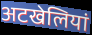
अटखेलियां